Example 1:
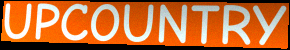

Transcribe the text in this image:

UPCOUNTRY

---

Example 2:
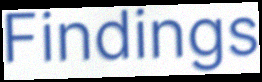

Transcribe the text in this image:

Findings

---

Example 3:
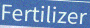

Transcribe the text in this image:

Fertilizer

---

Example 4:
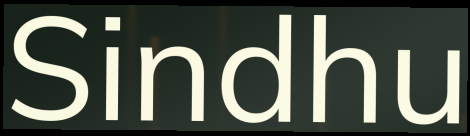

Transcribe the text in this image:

Sindhu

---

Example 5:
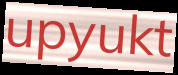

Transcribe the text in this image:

upyukt